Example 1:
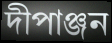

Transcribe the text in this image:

দীপাঞ্জন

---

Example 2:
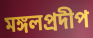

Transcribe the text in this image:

মঙ্গলপ্রদীপ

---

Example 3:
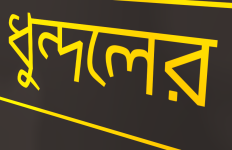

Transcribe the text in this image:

ধুন্দলের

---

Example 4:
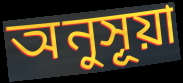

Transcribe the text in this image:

অনুসূয়া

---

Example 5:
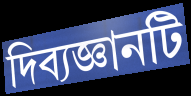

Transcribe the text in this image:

দিব্যজ্ঞানটি